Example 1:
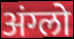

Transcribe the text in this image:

अंग्लो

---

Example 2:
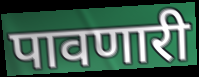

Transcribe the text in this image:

पावणारी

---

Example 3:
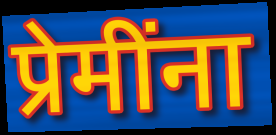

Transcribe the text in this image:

प्रेमींना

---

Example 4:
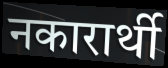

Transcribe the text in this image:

नकारार्थी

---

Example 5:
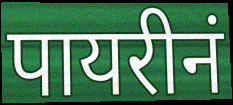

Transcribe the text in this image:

पायरीनं